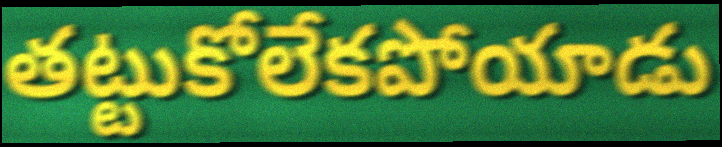
తట్టుకోలేకపోయాడు